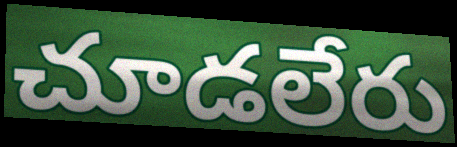
చూడలేరు